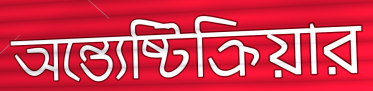
অন্ত্যেষ্টিক্রিয়ার